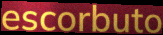
escorbuto